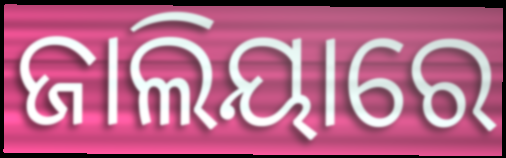
ଜାଲିୟାରେ